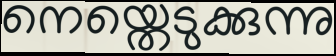
നെയ്തെടുക്കുന്നു